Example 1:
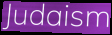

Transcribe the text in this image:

Judaism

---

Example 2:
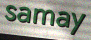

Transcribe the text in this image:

samay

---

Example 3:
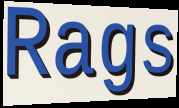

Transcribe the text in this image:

Rags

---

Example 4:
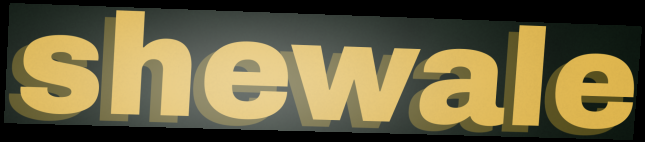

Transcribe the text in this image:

shewale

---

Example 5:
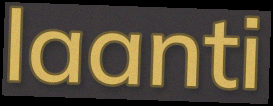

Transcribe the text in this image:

laanti